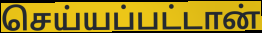
செய்யப்பட்டான்